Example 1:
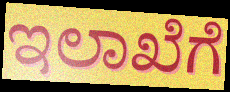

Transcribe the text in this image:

ಇಲಾಖೆಗೆ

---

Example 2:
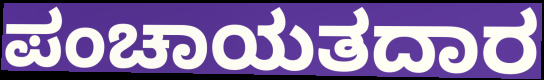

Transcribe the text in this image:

ಪಂಚಾಯತದಾರ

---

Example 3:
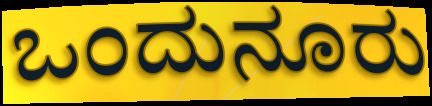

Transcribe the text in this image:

ಒಂದುನೂರು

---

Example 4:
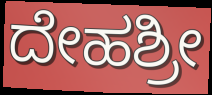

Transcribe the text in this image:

ದೇಹಶ್ರೀ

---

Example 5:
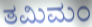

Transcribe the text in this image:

ತಮಿಮಂ